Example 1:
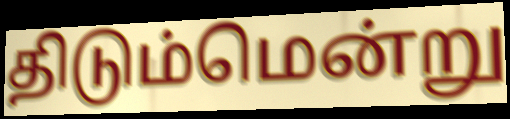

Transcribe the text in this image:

திடும்மென்று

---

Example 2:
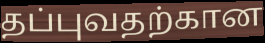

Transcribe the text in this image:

தப்புவதற்கான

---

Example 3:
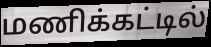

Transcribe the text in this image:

மணிக்கட்டில்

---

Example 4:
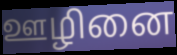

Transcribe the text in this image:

ஊழினை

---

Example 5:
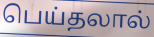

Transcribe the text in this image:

பெய்தலால்